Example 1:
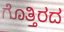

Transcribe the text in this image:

ಗೊತ್ತಿರದ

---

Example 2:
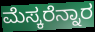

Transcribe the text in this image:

ಮೆಸ್ಕರೆನ್ನಾರ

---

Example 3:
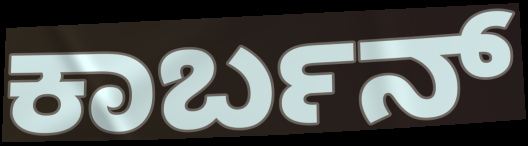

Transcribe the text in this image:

ಕಾರ್ಬನ್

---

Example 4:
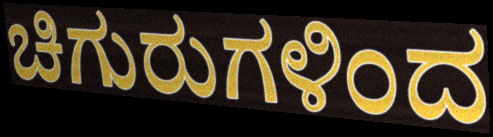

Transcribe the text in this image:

ಚಿಗುರುಗಳಿಂದ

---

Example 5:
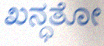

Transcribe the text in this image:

ಖನ್ಧತೋ